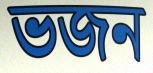
ভজন